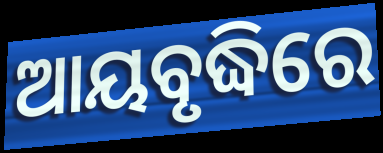
ଆୟବୃଦ୍ଧିରେ